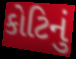
કોટિનું